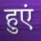
हुएं